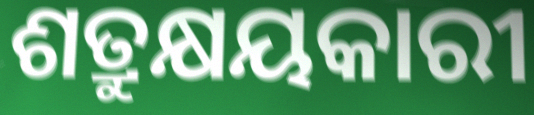
ଶତ୍ରୁକ୍ଷୟକାରୀ